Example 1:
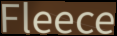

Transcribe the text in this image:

Fleece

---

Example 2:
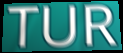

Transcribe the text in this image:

TUR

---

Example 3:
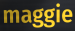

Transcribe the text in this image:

maggie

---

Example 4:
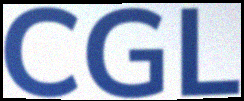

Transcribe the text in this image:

CGL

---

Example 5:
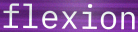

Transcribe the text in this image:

flexion